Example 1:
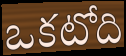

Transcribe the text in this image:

ఒకటోది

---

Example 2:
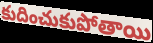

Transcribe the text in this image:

కుదించుకుపోతాయి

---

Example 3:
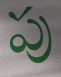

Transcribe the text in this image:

పు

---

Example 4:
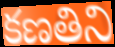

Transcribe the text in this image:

కణతిని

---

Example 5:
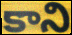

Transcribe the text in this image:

కాని